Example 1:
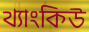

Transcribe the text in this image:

থ্যাংকিউ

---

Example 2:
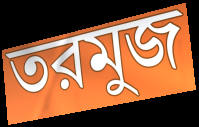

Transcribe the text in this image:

তরমুজ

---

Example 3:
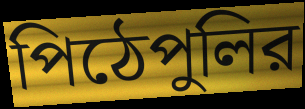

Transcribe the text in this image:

পিঠেপুলির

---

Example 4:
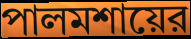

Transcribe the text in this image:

পালমশায়ের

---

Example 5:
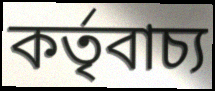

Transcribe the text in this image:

কর্তৃবাচ্য